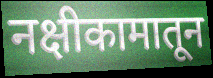
नक्षीकामातून